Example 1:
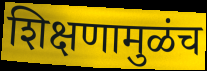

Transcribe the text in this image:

शिक्षणामुळंच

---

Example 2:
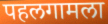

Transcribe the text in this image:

पहलगामला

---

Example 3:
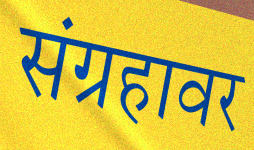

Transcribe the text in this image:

संग्रहावर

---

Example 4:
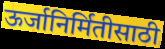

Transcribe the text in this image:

ऊर्जानिर्मितीसाठी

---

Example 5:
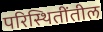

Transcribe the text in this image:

परिस्थितींतील